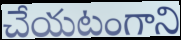
చేయటంగాని